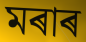
মৰাৰ